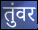
तुंवर